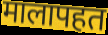
मालापहत